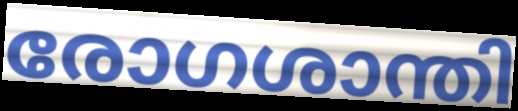
രോഗശാന്തി